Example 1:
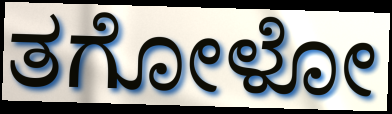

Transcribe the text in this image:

ತಗೋಳೋ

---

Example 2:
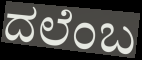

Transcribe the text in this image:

ದಲೆಂಬ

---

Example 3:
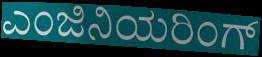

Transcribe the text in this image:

ಎಂಜಿನಿಯರಿಂಗ್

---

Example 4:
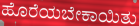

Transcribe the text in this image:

ಹೊರೆಯಬೇಕಾಯಿತು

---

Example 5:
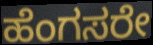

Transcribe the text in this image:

ಹೆಂಗಸರೇ